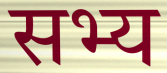
सभ्य